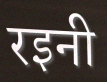
रइनी